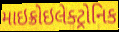
માઇક્રોઇલેક્ટ્રોનિક